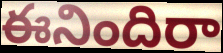
ఈనిందిరా